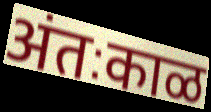
अंतःकाळ